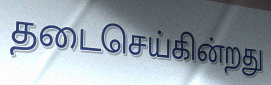
தடைசெய்கின்றது